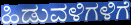
ಹಿಡುವಳಿಗಳಿಗೆ